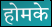
होमके